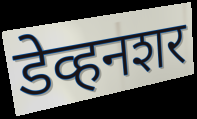
डेव्हनशर